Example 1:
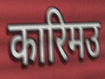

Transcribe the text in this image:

कारिमउ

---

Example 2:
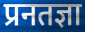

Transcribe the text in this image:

प्रनतज्ञा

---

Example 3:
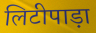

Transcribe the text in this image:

लिटीपाड़ा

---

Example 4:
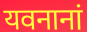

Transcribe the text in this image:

यवनानां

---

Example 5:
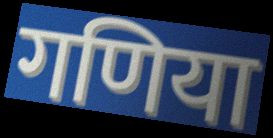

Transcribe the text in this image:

गणिया